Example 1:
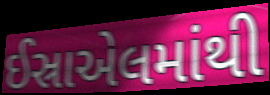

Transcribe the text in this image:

ઈસ્રાએલમાંથી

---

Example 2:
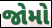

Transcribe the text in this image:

જોમો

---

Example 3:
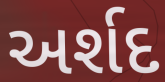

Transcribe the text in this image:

અર્શદ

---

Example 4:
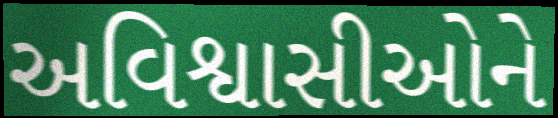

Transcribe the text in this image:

અવિશ્વાસીઓને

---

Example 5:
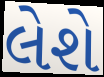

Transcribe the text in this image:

લેશે